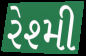
રેશ્મી